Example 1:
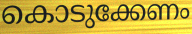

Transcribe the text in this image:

കൊടുക്കേണം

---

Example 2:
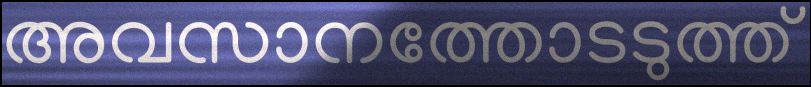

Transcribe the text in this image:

അവസാനത്തോടടുത്ത്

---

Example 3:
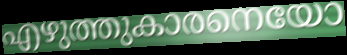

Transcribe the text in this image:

എഴുത്തുകാരനെയോ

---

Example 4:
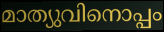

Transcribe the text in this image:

മാത്യുവിനൊപ്പം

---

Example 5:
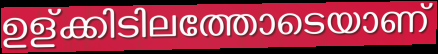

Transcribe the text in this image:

ഉള്ക്കിടിലത്തോടെയാണ്